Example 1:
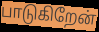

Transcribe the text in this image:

பாடுகிறேன்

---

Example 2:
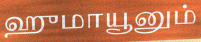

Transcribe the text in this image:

ஹுமாயூனும்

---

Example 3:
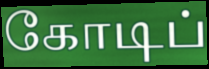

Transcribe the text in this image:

கோடிப்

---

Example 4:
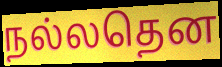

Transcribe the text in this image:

நல்லதென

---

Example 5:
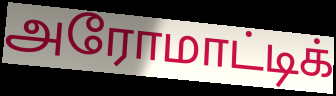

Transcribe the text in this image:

அரோமாட்டிக்